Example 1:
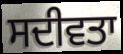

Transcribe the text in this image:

ਸਦੀਵਤਾ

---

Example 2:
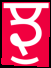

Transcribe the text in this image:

ਝੁ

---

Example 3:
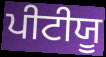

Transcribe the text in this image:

ਪੀਟੀਯੂ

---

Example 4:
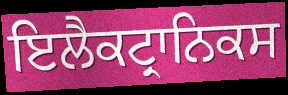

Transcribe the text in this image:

ਇਲੈਕਟ੍ਰਾਨਿਕਸ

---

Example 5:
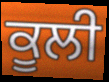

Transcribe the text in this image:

ਕੂਲੀ